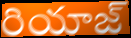
రియాజ్